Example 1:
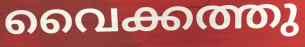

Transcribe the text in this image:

വൈക്കത്തു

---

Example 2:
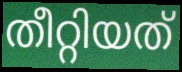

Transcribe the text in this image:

തീറ്റിയത്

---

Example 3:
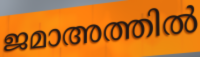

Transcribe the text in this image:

ജമാഅത്തിൽ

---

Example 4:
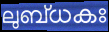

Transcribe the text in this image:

ലുബ്ധകഃ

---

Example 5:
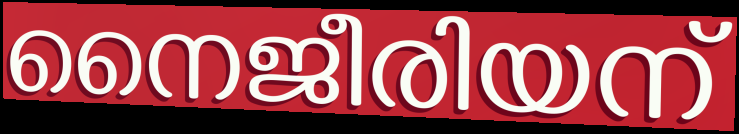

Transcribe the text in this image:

നൈജീരിയന്